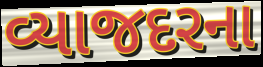
વ્યાજદરના